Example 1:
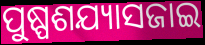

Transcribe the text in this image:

ପୁଷ୍ପଶଯ୍ୟାସଜାଇ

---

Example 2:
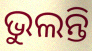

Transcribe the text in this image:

ଭୁଲନ୍ତି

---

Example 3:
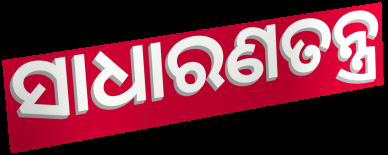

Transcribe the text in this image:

ସାଧାରଣତନ୍ତ୍ର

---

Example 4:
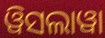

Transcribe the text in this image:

ୱିସଲାୱା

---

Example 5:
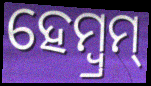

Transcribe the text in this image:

ହେମ୍ବ୍ରମ୍